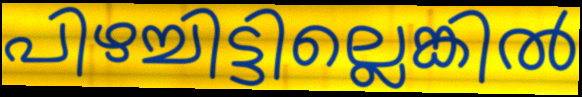
പിഴച്ചിട്ടില്ലെങ്കിൽ